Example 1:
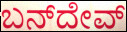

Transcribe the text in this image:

ಬನ್‌ದೇವ್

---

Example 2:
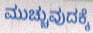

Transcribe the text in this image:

ಮುಚ್ಚುವುದಕ್ಕೆ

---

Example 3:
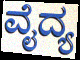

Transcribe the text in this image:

ವೈದ್ಯ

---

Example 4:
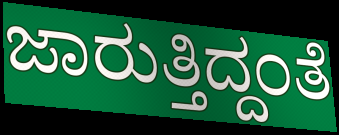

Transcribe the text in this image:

ಜಾರುತ್ತಿದ್ದಂತೆ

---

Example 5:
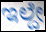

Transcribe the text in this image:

ಇಲ್ದೇ